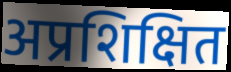
अप्रशिक्षित